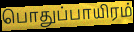
பொதுப்பாயிரம்